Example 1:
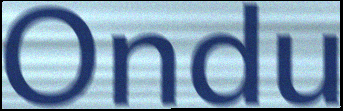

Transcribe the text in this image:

Ondu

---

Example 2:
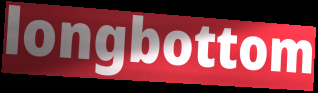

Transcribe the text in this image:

longbottom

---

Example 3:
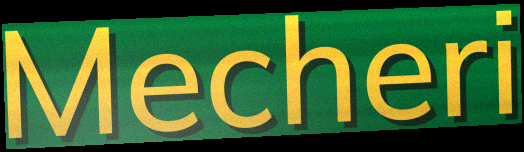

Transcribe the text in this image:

Mecheri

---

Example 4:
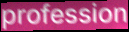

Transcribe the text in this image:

profession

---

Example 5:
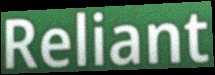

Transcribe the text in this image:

Reliant